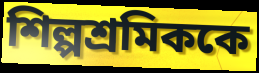
শিল্পশ্রমিককে